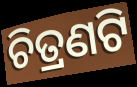
ଚିତ୍ରଣଟି